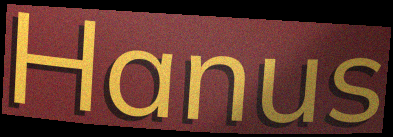
Hanus